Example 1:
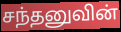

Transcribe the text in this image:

சந்தனுவின்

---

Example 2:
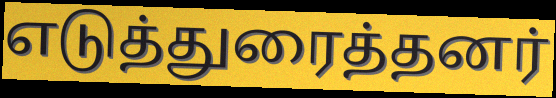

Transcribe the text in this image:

எடுத்துரைத்தனர்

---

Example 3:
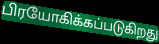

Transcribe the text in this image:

பிரயோகிக்கப்படுகிறது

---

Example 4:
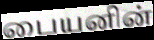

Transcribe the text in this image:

பையனின்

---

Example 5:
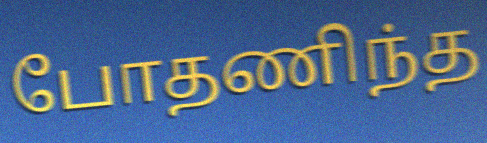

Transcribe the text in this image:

போதணிந்த